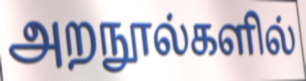
அறநூல்களில்